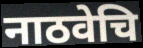
नाठवेचि